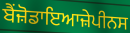
ਬੈਂਜ਼ੋਡਾਇਆਜ਼ੇਪੀਨਸ